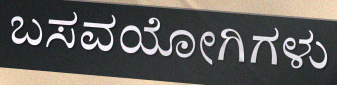
ಬಸವಯೋಗಿಗಳು